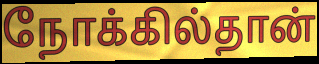
நோக்கில்தான்